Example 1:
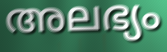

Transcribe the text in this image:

അലഭ്യം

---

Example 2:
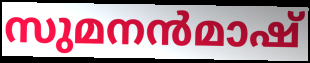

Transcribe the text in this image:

സുമനൻമാഷ്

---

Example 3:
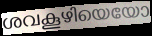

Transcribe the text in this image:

ശവകൂഴിയെയോ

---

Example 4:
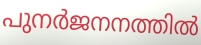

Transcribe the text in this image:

പുനർജനനത്തിൽ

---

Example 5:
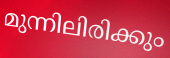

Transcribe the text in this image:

മുന്നിലിരിക്കും